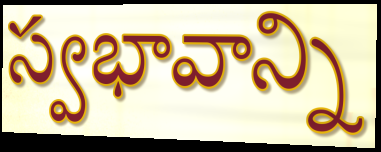
స్వభావాన్ని